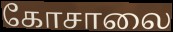
கோசாலை